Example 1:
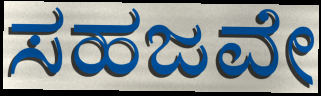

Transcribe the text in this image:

ಸಹಜವೇ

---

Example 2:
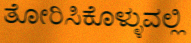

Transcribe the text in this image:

ತೋರಿಸಿಕೊಳ್ಳುವಲ್ಲಿ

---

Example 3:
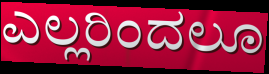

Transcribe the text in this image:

ಎಲ್ಲರಿಂದಲೂ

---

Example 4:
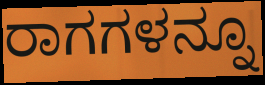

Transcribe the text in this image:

ರಾಗಗಳನ್ನೂ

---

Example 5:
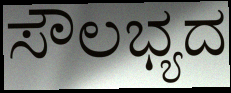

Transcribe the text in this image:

ಸೌಲಭ್ಯದ